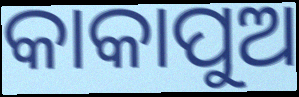
କାକାପୁଅ